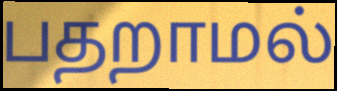
பதறாமல்